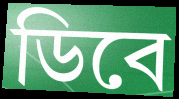
ডিবে